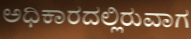
ಅಧಿಕಾರದಲ್ಲಿರುವಾಗ